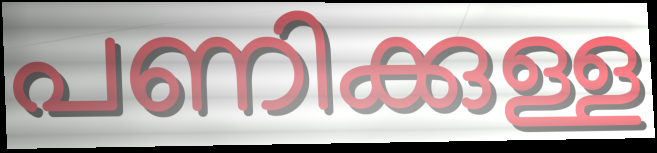
പണിക്കുള്ള